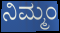
ನಿಮ್ಮಂ